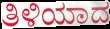
ತಿಳಿಯಾದ